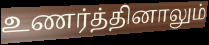
உணர்த்தினாலும்